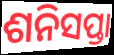
ଶନିସପ୍ତା